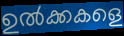
ഉൽക്കകളെ